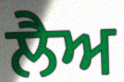
ਲੈਅ